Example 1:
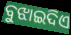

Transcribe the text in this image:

ବୁଝାଇଦିଏ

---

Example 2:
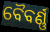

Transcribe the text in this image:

ବୈବର୍ଣ୍ଣ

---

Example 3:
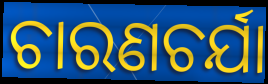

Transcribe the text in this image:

ଚାରଣଚର୍ଯା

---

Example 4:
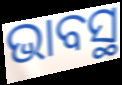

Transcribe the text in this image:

ଭାବସ୍ଥ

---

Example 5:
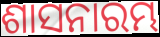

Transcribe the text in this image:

ଶାସନାରମ୍ଭ